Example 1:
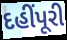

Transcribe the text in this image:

દહીંપૂરી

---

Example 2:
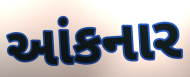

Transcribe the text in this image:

આંકનાર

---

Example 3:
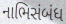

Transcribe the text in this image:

નાભિસંબંધ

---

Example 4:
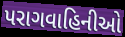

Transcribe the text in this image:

પરાગવાહિનીઓ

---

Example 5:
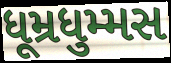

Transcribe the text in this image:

ધૂમ્રધુમ્મસ